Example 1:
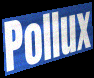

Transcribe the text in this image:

Pollux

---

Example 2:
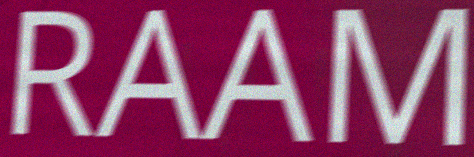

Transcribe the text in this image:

RAAM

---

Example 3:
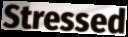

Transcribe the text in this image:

Stressed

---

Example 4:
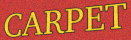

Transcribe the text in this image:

CARPET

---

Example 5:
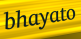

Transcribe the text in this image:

bhayato